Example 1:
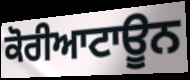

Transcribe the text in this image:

ਕੋਰੀਆਟਾਊਨ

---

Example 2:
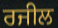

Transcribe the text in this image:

ਰਜੀਲ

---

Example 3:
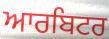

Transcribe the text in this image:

ਆਰਬਿਟਰ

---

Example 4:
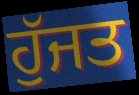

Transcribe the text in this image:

ਹੁੱਜਤ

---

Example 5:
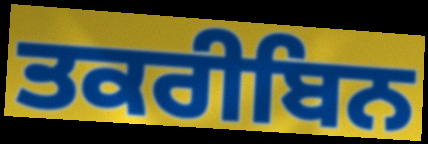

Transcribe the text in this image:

ਤਕਰੀਬਿਨ